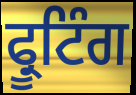
ਫ੍ਰੂਟਿੰਗ